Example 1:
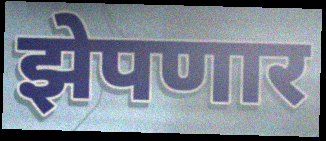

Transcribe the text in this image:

झेपणार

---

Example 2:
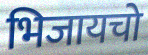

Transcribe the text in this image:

भिजायचो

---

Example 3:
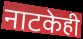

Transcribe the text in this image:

नाटकेही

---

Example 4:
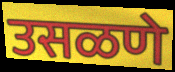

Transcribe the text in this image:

उसळणे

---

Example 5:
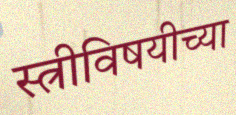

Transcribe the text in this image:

स्त्रीविषयीच्या